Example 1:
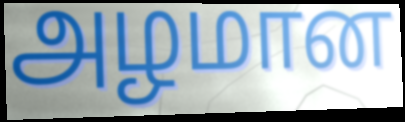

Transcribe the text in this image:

அழமான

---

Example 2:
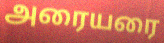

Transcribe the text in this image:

அரையரை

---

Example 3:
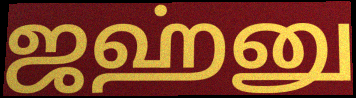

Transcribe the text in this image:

ஜஹ்னு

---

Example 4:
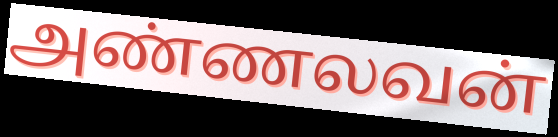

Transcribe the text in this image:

அண்ணலவன்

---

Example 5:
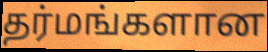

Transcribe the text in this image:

தர்மங்களான